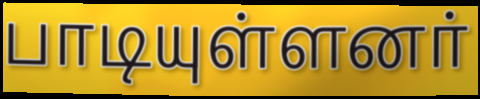
பாடியுள்ளனர்